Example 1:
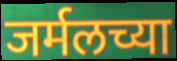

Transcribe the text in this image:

जर्मलच्या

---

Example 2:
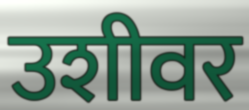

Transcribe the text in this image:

उशीवर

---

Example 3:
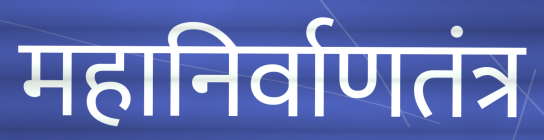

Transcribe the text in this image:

महानिर्वाणतंत्र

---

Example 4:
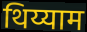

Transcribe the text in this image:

थिय्याम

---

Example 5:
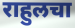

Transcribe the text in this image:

राहुलचा